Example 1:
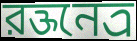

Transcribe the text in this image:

রক্তনেত্র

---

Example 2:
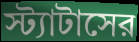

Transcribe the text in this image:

স্ট্যাটাসের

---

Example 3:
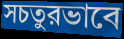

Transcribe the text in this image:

সচতুরভাবে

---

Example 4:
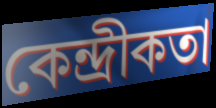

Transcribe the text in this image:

কেন্দ্রীকতা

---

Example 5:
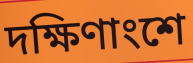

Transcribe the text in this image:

দক্ষিণাংশে